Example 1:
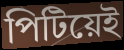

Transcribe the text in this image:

পিটিয়েই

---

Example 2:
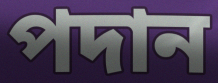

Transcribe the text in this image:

পদান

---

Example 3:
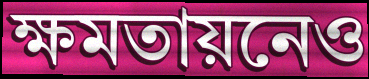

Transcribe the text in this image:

ক্ষমতায়নেও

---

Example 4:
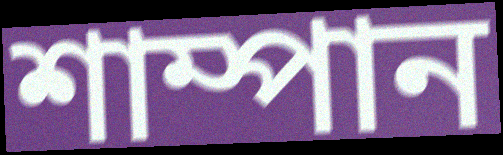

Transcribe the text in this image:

শাম্পান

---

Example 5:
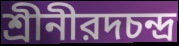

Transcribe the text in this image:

শ্রীনীরদচন্দ্র